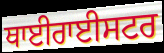
ਥਾਈਰਾਈਸਟਰ